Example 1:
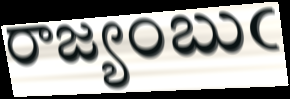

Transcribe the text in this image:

రాజ్యంబుఁ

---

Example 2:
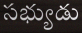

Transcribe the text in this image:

సభ్యుడు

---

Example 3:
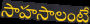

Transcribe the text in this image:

సాహసాలంటే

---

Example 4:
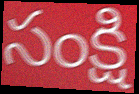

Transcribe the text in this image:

సంక్షి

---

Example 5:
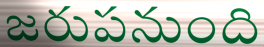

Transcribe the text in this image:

జరుపనుంది